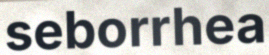
seborrhea